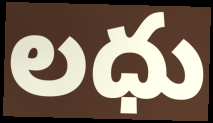
లధు